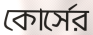
কোর্সের